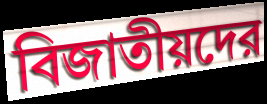
বিজাতীয়দের